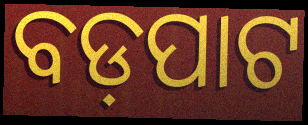
ବଡ଼ପାଟ